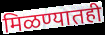
मिळण्यातही